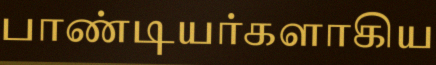
பாண்டியர்களாகிய